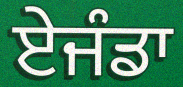
ਏਜੰਡਾ